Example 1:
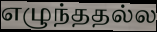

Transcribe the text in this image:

எழுந்ததல்ல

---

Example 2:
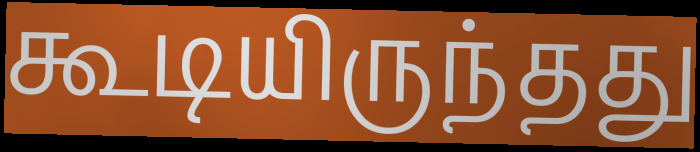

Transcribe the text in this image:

கூடியிருந்தது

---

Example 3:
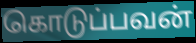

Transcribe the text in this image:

கொடுப்பவன்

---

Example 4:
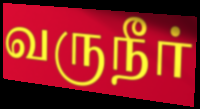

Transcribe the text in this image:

வருநீர்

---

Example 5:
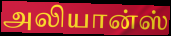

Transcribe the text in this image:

அலியான்ஸ்